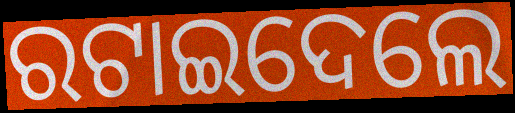
ରଟାଇଦେଲେ